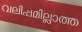
വലിപ്പമില്ലാത്ത